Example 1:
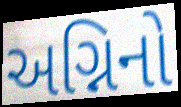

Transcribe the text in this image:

અગ્નિનો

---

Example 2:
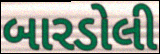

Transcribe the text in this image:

બારડોલી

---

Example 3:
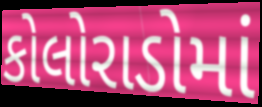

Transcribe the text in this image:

કોલોરાડોમાં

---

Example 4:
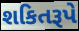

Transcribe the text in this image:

શકિતરૂપે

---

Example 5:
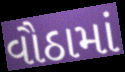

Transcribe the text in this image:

વૌઠામાં